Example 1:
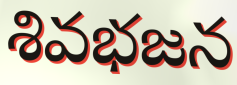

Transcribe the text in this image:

శివభజన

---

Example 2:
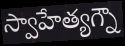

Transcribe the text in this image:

స్వాహేత్యగ్నౌ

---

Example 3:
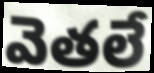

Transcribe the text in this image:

వెతలే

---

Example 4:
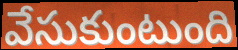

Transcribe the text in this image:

వేసుకుంటుంది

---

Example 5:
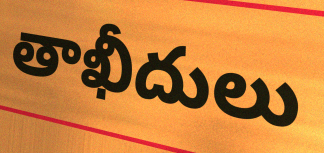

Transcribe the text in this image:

తాఖీదులు